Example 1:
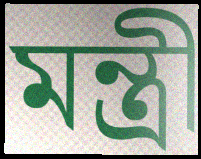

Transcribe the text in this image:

মন্ত্ৰী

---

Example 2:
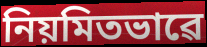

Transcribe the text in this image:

নিয়মিতভাৱে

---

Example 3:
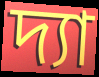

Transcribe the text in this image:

দ্যা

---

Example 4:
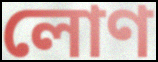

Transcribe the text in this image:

লোণ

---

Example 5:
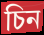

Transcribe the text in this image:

চিন